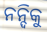
ନନ୍ଦିକୁ